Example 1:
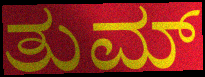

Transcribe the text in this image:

ತುಮ್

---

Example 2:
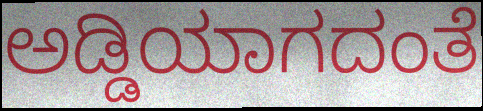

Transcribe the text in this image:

ಅಡ್ಡಿಯಾಗದಂತೆ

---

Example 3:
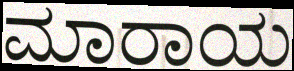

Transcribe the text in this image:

ಮಾರಾಯ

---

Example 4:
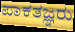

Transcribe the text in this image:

ಪಾಕತಜ್ಞರು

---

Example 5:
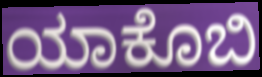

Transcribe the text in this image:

ಯಾಕೊಬಿ